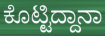
ಕೊಟ್ಟಿದ್ದಾನಾ